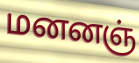
மனனஞ்